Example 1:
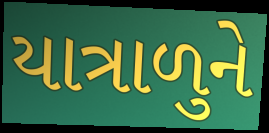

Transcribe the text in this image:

યાત્રાળુને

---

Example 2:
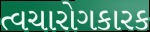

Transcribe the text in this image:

ત્વચારોગકારક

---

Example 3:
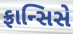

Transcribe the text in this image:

ફ્રાન્સિસે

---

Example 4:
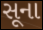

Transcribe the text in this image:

સૂના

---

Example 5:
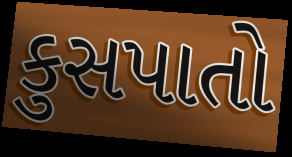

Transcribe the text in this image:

કુસપાતો